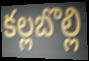
కల్లబొల్లి